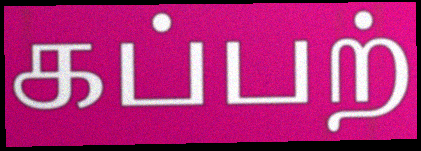
கப்பற்